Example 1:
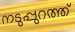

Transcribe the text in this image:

നടുപ്പുറത്ത്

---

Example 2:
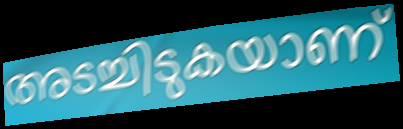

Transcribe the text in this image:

അടച്ചിടുകയാണ്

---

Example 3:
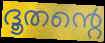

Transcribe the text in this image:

ദൂതന്റെ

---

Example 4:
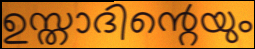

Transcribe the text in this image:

ഉസ്താദിന്റെയും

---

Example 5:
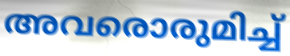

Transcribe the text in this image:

അവരൊരുമിച്ച്